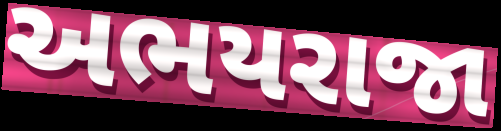
અભયરાજા